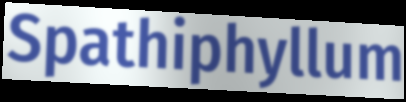
Spathiphyllum